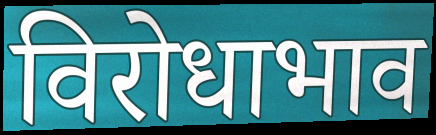
विरोधाभाव